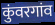
कुंवरगांव